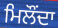
ਮਿਲੌਂਦਾ